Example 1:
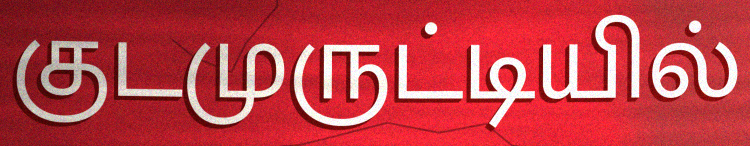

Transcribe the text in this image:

குடமுருட்டியில்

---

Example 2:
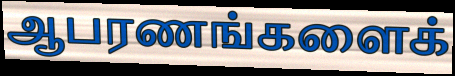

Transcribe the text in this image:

ஆபரணங்களைக்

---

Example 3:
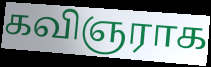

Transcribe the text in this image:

கவிஞராக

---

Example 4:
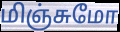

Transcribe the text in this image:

மிஞ்சுமோ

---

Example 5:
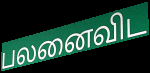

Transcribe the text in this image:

பலனைவிட